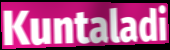
Kuntaladi